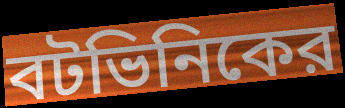
বটভিনিকের